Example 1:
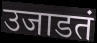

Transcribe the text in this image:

उजाडतं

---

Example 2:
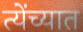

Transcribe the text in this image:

त्येंच्यात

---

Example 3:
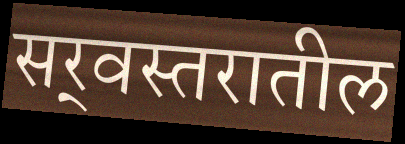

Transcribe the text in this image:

सर्वस्तरातील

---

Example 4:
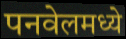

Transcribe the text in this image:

पनवेलमध्ये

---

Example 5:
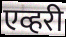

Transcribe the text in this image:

एव्हरी